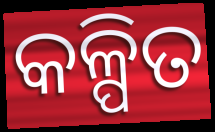
କଳ୍ପିତ